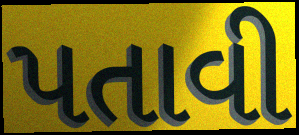
પતાવી